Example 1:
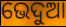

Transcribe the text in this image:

ଭେଦୁଆ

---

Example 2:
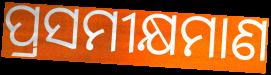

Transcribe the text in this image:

ପ୍ରସମୀକ୍ଷମାଣ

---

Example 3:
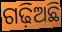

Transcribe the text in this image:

ଗଢ଼ିଅଛି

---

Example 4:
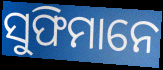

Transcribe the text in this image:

ସୁଫିମାନେ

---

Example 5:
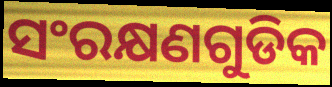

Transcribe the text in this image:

ସଂରକ୍ଷଣଗୁଡିକ